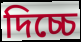
দিচ্চে